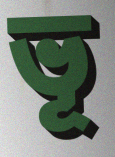
ভূ